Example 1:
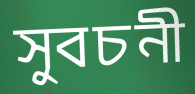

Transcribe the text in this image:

সুবচনী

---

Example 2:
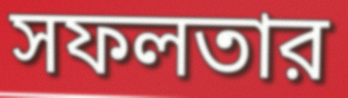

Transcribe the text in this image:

সফলতার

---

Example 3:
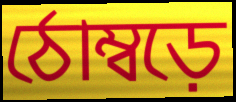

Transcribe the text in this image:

ঠোম্বড়ে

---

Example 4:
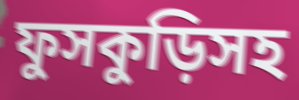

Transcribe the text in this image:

ফুসকুড়িসহ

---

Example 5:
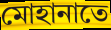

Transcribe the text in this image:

মোহানাতে